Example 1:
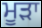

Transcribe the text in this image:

ਮੂੜਾ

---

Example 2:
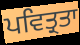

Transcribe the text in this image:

ਪਵਿਤ੍ਰਤਾ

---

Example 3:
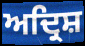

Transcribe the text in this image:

ਅਦ੍ਰਿਸ਼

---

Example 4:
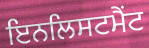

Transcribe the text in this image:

ਇਨਲਿਸਟਮੈਂਟ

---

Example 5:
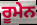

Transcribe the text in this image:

ਰੂਮੇਨ